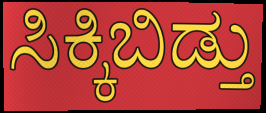
ಸಿಕ್ಕಿಬಿಡ್ತು